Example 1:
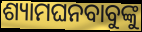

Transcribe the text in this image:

ଶ୍ୟାମଘନବାବୁଙ୍କୁ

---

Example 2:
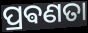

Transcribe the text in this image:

ପ୍ରଵଣତା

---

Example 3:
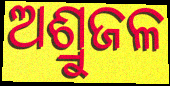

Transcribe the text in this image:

ଅଶ୍ରୁଜଳ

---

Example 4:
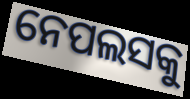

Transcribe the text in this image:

ନେପଲସକୁ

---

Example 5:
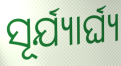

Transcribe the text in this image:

ସୂର୍ଯ୍ୟାର୍ଘ୍ୟ